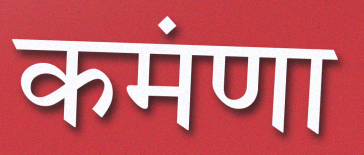
कमंणा